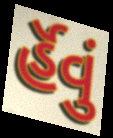
ર્હૅવું